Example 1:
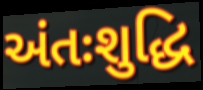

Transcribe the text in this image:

અંતઃશુદ્ધિ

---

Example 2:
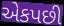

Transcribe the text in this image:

એકપછી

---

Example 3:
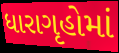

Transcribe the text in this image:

ધારાગૃહોમાં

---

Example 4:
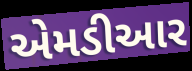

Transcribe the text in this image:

એમડીઆર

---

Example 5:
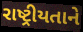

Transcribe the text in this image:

રાષ્ટ્રીયતાને